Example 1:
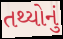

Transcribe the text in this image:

તથ્યોનું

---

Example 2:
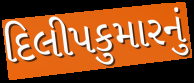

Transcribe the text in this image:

દિલીપકુમારનું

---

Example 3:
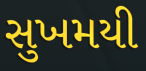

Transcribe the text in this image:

સુખમયી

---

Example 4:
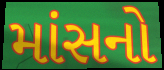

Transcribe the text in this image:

માંસનો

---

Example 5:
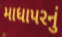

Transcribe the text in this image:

માધાપરનું